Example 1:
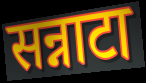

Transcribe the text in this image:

सन्नाटा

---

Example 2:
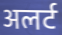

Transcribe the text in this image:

अलर्ट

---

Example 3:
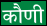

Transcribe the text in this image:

कौणी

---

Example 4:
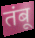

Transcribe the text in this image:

तंबू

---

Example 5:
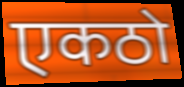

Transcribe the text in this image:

एकठो